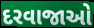
દરવાજાઓ